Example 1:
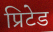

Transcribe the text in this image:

प्रिटेड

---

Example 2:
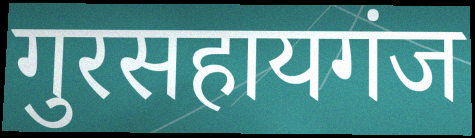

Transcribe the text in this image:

गुरसहायगंज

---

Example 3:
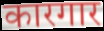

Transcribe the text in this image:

कारगार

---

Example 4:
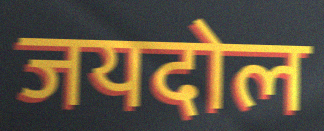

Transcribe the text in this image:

जयदोल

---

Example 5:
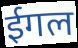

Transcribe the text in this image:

ईगल